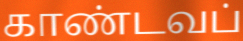
காண்டவப்